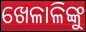
ଖେଳାଳିଙ୍କୁ